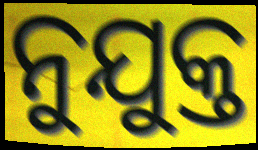
ନୁଯୁକ୍ତ